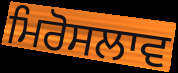
ਮਿਰੋਸਲਾਵ